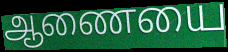
ஆணையை